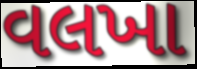
વલખા